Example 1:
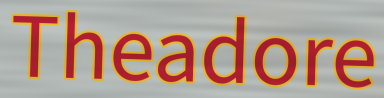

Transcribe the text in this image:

Theadore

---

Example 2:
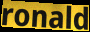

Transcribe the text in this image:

ronald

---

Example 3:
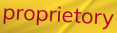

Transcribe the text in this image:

proprietory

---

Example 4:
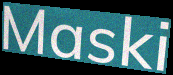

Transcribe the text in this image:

Maski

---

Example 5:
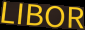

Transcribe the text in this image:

LIBOR